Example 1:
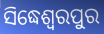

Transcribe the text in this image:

ସିଦ୍ଧେଶ୍ଵରପୁର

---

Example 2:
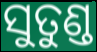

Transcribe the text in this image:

ସୁତୁଣ୍ଡ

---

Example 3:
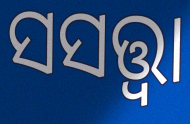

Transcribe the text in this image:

ସସତ୍ତ୍ୱା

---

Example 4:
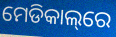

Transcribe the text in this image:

ମେଡିକାଲ୍‌ରେ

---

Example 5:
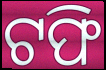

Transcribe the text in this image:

ଟଫି